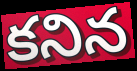
కనిన